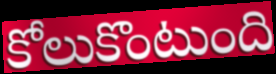
కోలుకొంటుంది